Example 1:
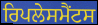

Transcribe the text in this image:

ਰਿਪਲੇਸਮੈਂਟਸ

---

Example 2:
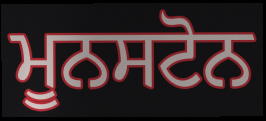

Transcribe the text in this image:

ਮੂਨਸਟੋਨ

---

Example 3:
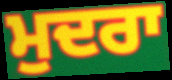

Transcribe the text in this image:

ਮੁਦਰਾ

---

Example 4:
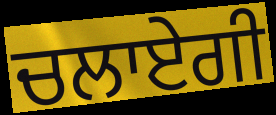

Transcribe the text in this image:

ਚਲਾਏਗੀ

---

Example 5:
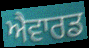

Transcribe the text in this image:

ਐਵਾਰਡ